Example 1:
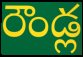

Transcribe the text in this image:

రౌండ్ల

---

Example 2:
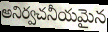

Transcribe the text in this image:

అనిర్వచనీయమైన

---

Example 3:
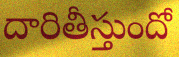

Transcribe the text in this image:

దారితీస్తుందో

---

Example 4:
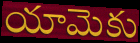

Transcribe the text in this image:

యామెకు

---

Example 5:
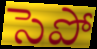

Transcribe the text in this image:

సెపో